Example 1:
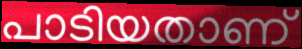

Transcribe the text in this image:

പാടിയതാണ്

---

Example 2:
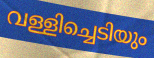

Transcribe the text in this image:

വള്ളിച്ചെടിയും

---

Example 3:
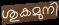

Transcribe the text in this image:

ശുകമുനി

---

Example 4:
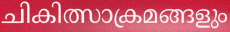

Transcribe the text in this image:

ചികിത്സാക്രമങ്ങളും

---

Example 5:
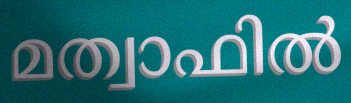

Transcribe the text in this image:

മത്വാഫിൽ